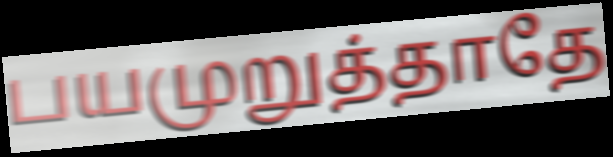
பயமுறுத்தாதே